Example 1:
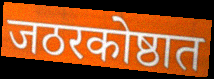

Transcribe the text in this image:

जठरकोष्ठात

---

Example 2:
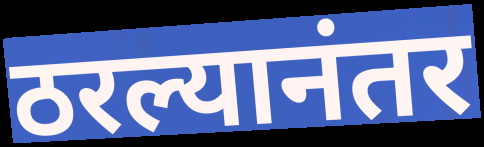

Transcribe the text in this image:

ठरल्यानंतर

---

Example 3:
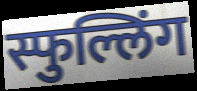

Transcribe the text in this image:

स्फुल्लिंग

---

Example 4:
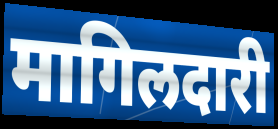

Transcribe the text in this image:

मागिलदारी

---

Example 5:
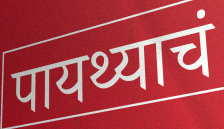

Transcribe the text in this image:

पायथ्याचं